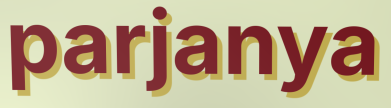
parjanya